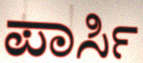
ಪಾರ್ಸಿ